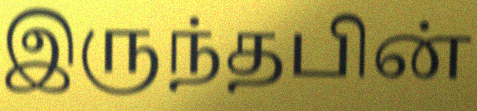
இருந்தபின்